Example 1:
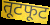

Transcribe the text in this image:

तूटफूट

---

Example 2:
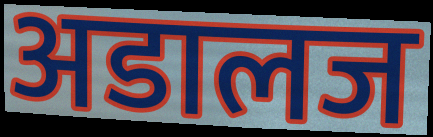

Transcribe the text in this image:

अडालज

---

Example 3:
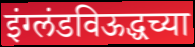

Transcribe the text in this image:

इंग्लंडविऊद्धच्या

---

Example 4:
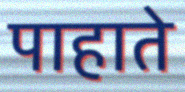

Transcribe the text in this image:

पाहाते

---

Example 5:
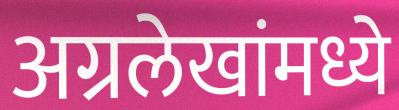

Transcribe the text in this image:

अग्रलेखांमध्ये